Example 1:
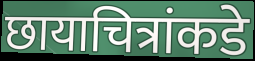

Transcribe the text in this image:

छायाचित्रांकडे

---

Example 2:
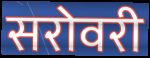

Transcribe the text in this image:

सरोवरी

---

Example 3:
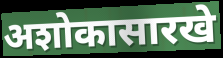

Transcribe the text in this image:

अशोकासारखे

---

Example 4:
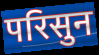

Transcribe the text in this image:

परिसुन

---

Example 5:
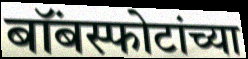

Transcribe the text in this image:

बॉंबस्फोटांच्या